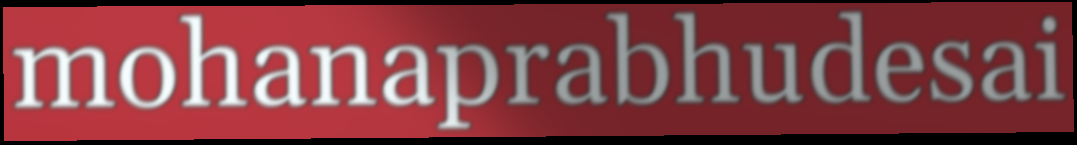
mohanaprabhudesai